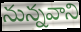
నున్నవాని